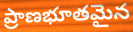
ప్రాణభూతమైన